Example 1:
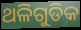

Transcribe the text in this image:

ଥଳିଗୁଡିକ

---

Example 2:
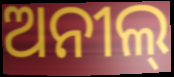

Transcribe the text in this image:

ଅନୀଲ୍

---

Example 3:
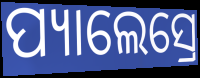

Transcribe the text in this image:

ପ୍ୟାଲେସ୍ରେ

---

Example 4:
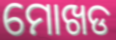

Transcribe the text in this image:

ମୋଖଡ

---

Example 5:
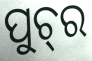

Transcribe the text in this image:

ପୁଚ୍‍ର